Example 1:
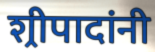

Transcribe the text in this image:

श्रीपादांनी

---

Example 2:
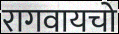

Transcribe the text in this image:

रागवायचो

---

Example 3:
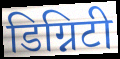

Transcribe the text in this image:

डिग्निटी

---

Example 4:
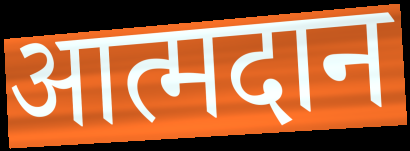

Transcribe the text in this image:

आत्मदान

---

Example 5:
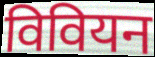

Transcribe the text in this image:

विवियन